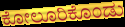
ಕೋಲೂರಿಕೊಂಡು